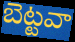
బెట్టవా